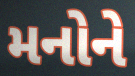
મનોને